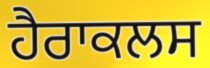
ਹੈਰਾਕਲਸ